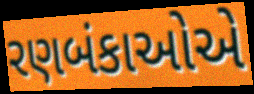
રણબંકાઓએ